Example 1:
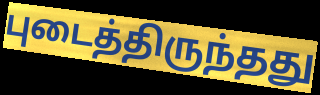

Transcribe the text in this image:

புடைத்திருந்தது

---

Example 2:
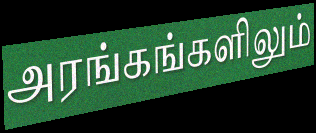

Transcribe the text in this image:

அரங்கங்களிலும்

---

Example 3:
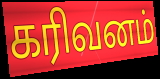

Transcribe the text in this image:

கரிவனம்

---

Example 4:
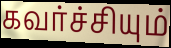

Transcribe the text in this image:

கவர்ச்சியும்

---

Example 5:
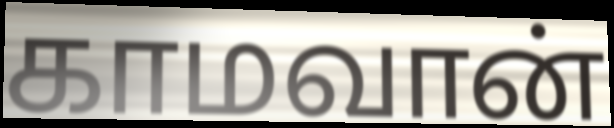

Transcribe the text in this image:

காமவான்